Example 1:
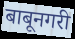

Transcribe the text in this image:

बाबूनगरी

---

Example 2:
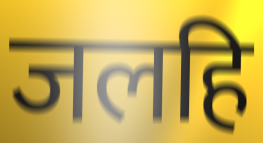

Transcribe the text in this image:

जलहि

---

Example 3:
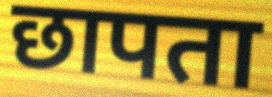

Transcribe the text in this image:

छापता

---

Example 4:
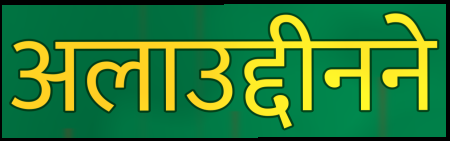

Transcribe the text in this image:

अलाउद्दीनने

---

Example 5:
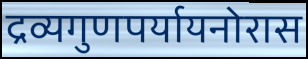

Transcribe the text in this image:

द्रव्यगुणपर्यायनोरास